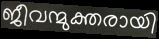
ജീവന്മുക്തരായി